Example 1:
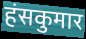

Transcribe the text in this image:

हंसकुमार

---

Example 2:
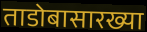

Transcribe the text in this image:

ताडोबासारख्या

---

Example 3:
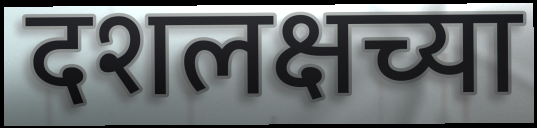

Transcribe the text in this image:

दशलक्षच्या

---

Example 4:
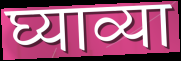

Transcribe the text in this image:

घ्याव्या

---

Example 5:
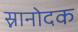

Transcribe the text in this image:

स्नानोदक